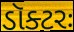
ડૉક્ટરઃ